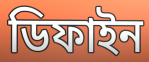
ডিফাইন